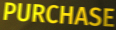
PURCHASE